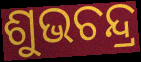
ଶୁଭଚନ୍ଦ୍ର